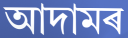
আদামৰ